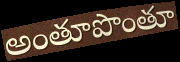
అంతూపొంతూ